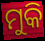
ମୁକି